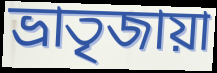
ভ্রাতৃজায়া